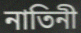
নাতিনী